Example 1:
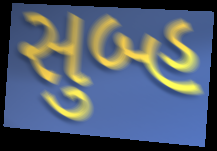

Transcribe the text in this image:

સુબ્હ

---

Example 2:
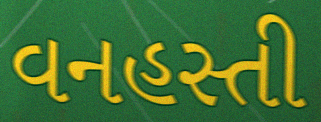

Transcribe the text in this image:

વનહસ્તી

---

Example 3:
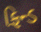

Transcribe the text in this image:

ફિન્ડ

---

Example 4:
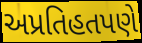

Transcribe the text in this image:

અપ્રતિહતપણે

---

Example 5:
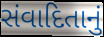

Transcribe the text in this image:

સંવાદિતાનું